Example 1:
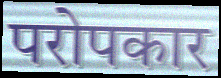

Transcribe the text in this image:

परोपकार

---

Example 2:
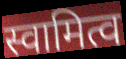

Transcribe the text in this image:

स्वामित्व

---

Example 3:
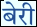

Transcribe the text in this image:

बेरी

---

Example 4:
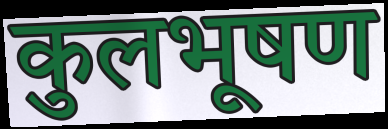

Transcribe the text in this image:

कुलभूषण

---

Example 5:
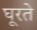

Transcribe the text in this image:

घूरते